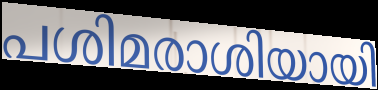
പശിമരാശിയായി